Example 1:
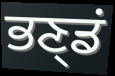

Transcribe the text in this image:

ਭਣ੍ਡਂ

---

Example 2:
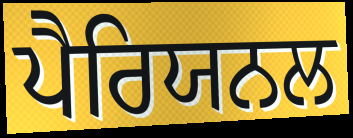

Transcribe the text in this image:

ਪੈਰਿਯਨਲ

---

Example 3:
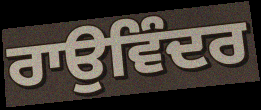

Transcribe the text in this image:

ਰਾਉਵਿੰਦਰ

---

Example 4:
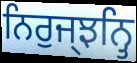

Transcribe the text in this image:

ਨਿਰੁਜ੍ਝਨ੍ਤਿ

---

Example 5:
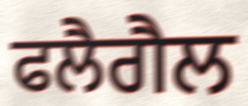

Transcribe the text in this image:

ਫਲੈਗੈਲ